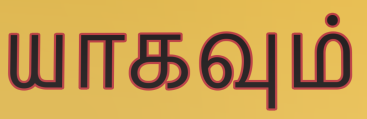
யாகவும்